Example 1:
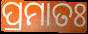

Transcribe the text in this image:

ପ୍ରମାତଃ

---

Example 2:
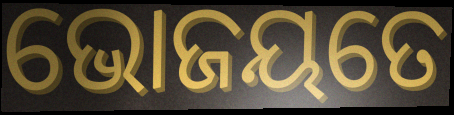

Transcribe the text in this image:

ଭୋଜୟତେ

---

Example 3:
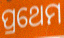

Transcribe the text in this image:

ପ୍ରଥେମ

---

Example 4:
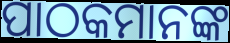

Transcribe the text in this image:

ପାଠକମାନଙ୍କ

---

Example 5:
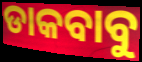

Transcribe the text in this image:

ଡାକବାବୁ